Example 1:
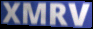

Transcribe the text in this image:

XMRV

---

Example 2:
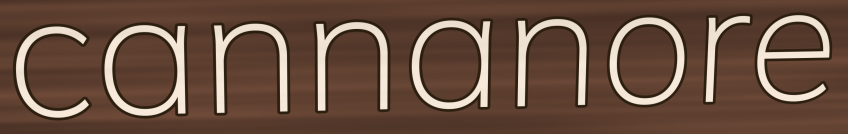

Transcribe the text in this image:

cannanore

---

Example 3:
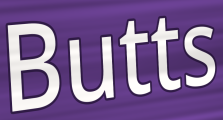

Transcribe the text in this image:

Butts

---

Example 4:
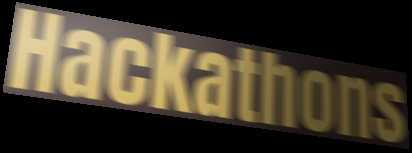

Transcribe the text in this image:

Hackathons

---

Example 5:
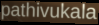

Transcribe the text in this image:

pathivukala